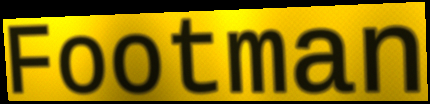
Footman